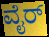
ವೈರ್